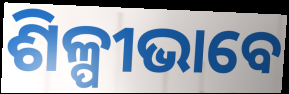
ଶିଳ୍ପୀଭାବେ